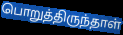
பொறுத்திருந்தாள்